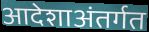
आदेशाअंतर्गत